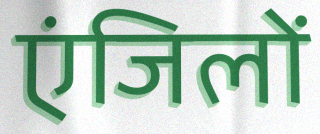
एंजिलों